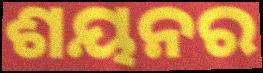
ଶୟନର